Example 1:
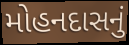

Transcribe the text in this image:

મોહનદાસનું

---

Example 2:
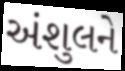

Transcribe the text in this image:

અંશુલને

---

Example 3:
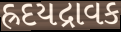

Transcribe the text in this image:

હ્રદયદ્રાવક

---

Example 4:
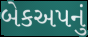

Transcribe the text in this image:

બેકઅપનું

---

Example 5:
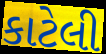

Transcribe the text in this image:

કાટેલી